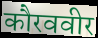
कौरववीर